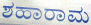
ಶಹಾರಾಮ